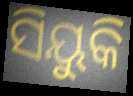
ସିୟୁକି